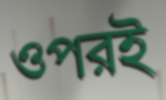
ওপরই